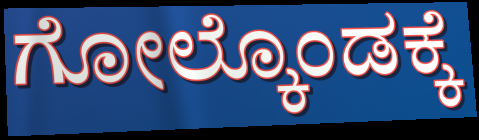
ಗೋಲ್ಕೊಂಡಕ್ಕೆ